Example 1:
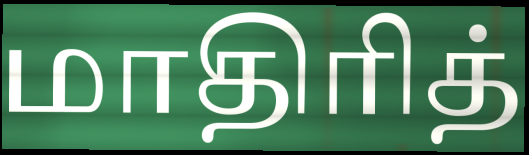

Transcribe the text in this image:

மாதிரித்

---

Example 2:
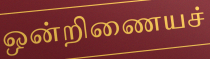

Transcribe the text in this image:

ஒன்றிணையச்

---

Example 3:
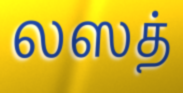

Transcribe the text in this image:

லஸத்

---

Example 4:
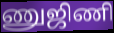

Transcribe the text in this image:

ணுஜிணி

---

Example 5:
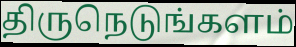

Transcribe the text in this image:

திருநெடுங்களம்